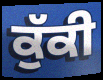
ਕੁੱਕੀ